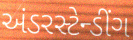
અંડરસ્ટેન્ડીંગ